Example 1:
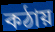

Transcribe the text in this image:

কঠায়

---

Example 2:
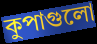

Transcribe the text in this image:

কুপাগুলো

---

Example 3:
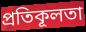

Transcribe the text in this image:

প্রতিকূলতা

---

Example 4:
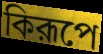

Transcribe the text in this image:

কিরূপে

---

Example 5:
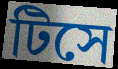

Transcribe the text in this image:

টিসে